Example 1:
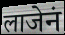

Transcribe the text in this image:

लाजेनं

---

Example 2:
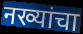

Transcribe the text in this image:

नख्यांचा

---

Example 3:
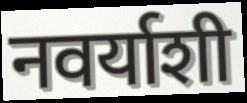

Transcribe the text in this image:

नवर्याशी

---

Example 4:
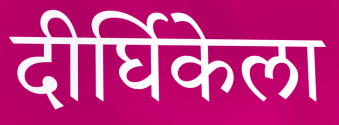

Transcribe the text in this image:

दीर्घिकेला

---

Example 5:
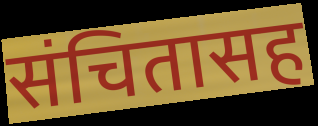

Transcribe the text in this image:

संचितासह